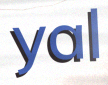
yal